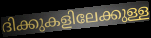
ദിക്കുകളിലേക്കുള്ള